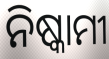
ନିଷ୍କାମୀ